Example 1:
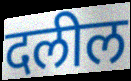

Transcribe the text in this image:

दलील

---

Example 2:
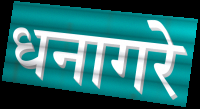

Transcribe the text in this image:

धनागरे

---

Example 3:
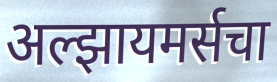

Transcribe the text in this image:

अल्झायमर्सचा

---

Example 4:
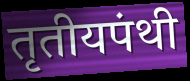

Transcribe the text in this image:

तृतीयपंथी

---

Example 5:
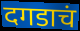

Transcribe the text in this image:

दगडाचं